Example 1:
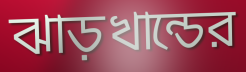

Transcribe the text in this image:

ঝাড়খান্ডের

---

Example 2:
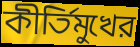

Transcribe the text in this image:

কীর্তিমুখের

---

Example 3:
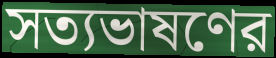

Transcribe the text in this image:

সত্যভাষণের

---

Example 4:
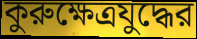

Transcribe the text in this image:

কুরুক্ষেত্রযুদ্ধের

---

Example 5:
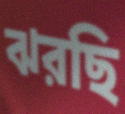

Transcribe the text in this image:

ঝরছি